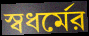
স্বধর্মের